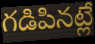
గడిపినట్లే